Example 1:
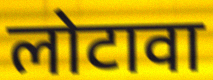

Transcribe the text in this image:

लोटावा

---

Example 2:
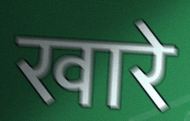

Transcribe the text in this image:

खारे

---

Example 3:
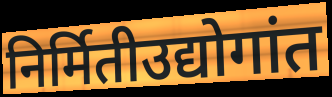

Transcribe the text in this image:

निर्मितीउद्योगांत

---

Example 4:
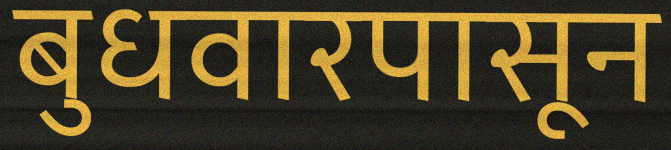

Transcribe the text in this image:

बुधवारपासून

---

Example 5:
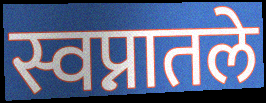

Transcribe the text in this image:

स्वप्नातले